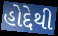
હોદ્દેથી